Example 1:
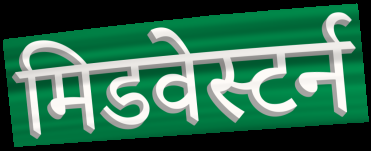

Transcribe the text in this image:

मिडवेस्टर्न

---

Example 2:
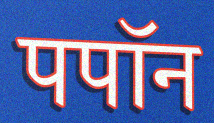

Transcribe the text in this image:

पपॉन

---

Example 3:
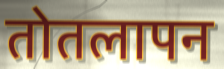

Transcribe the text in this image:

तोतलापन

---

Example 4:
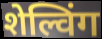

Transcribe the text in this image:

शेल्विंग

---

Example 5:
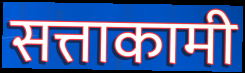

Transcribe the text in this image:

सत्ताकामी